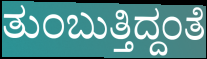
ತುಂಬುತ್ತಿದ್ದಂತೆ